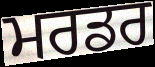
ਮਰਡਰ